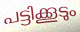
പട്ടിക്കൂടും